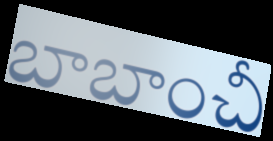
బాబాంచీ